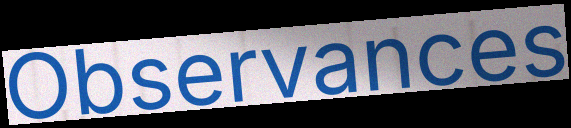
Observances